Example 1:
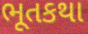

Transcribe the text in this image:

ભૂતકથા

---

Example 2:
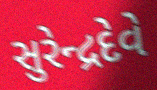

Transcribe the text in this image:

સુરેન્દ્રદેવે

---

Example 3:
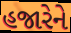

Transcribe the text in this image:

હજારેને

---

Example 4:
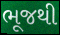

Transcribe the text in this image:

ભૂજથી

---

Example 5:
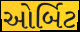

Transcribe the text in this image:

ઓર્બિટ